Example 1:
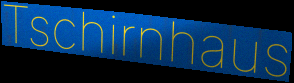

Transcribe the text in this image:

Tschirnhaus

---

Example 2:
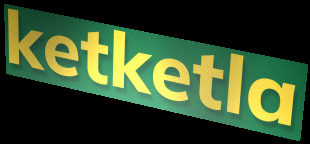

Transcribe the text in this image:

ketketla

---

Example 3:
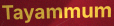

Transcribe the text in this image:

Tayammum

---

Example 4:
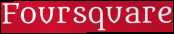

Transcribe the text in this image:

Foursquare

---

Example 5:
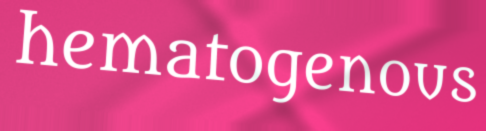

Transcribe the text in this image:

hematogenous